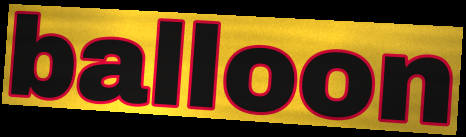
balloon